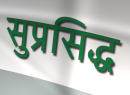
सुप्रसिद्ध